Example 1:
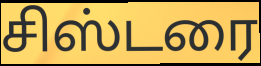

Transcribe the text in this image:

சிஸ்டரை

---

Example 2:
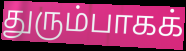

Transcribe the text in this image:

துரும்பாகக்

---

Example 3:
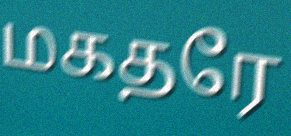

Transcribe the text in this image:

மகதரே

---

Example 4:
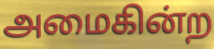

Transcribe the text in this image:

அமைகின்ற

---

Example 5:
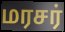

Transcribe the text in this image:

மரசர்